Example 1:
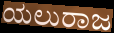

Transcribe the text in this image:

ಯಲುರಾಜ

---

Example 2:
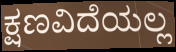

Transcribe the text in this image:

ಕ್ಷಣವಿದೆಯಲ್ಲ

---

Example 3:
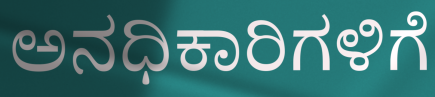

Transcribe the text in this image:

ಅನಧಿಕಾರಿಗಳಿಗೆ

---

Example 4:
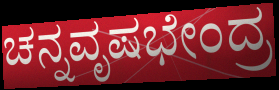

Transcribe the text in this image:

ಚನ್ನವೃಷಭೇಂದ್ರ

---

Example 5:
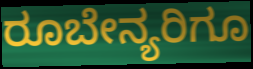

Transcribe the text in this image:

ರೂಬೇನ್ಯರಿಗೂ